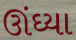
ઊંઘ્યા